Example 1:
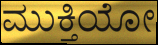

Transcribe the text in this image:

ಮುಕ್ತಿಯೋ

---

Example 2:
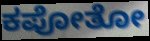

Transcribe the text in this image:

ಕಪೋತೋ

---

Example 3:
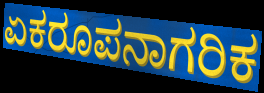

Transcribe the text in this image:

ಏಕರೂಪನಾಗರಿಕ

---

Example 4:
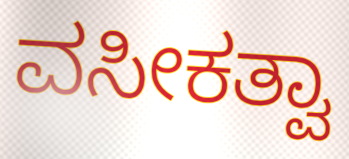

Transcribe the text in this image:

ವಸೀಕತ್ವಾ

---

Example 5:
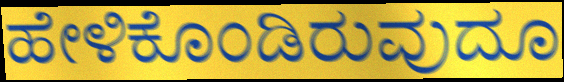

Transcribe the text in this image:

ಹೇಳಿಕೊಂಡಿರುವುದೂ